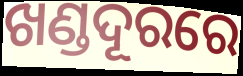
ଖଣ୍ଡଦୂରରେ